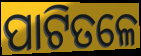
ପାଟିତଳେ